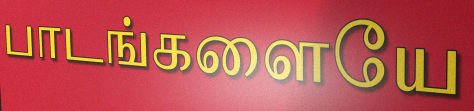
பாடங்களையே